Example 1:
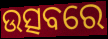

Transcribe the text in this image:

ଉତ୍ସବରେ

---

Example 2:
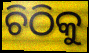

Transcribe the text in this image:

ଚିଠିକୁ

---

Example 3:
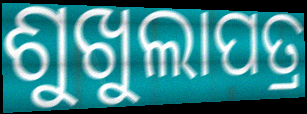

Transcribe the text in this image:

ଶୁଖୁଲାପତ୍ର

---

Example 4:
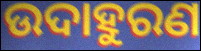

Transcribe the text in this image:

ଉଦାହୁରଣ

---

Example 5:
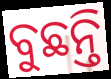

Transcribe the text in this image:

ବୁଛନ୍ତି